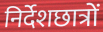
निर्देशछात्रों